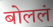
बोललं